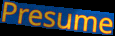
Presume